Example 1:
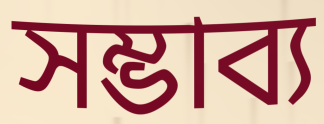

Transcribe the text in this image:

সম্ভাব্য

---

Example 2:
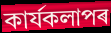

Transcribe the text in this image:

কাৰ্যকলাপৰ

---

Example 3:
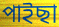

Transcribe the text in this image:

পাইছা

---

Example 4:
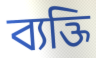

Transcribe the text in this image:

ব্যক্তি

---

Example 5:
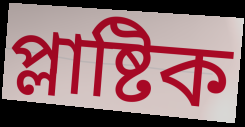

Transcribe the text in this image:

প্লাষ্টিক